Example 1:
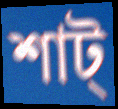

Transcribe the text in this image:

শাট্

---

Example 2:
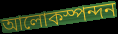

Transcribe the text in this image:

আলোকস্পন্দন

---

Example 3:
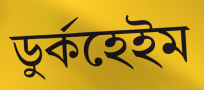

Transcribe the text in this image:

ডুর্কহেইম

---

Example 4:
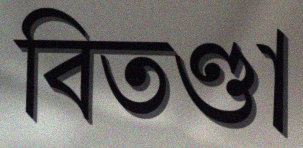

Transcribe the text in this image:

বিতণ্ডা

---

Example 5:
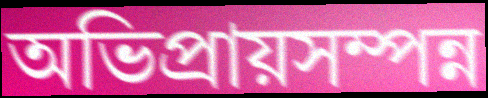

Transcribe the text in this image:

অভিপ্রায়সম্পন্ন